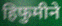
हिफुमीने